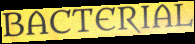
BACTERIAL